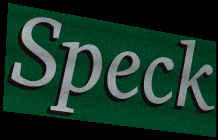
Speck